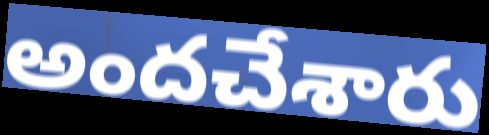
అందచేశారు